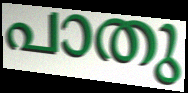
പാതു